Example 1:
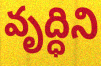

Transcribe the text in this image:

వృద్ధిని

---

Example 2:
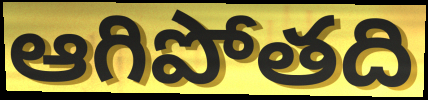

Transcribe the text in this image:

ఆగిపోతది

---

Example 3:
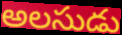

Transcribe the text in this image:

అలసుడు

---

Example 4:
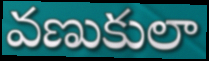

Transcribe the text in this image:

వణుకులా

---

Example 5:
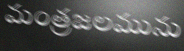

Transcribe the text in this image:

మంత్రజలమును